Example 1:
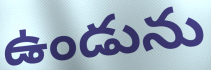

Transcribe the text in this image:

ఉండును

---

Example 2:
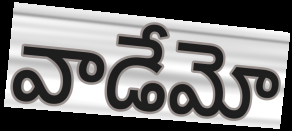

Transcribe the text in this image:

వాడేమో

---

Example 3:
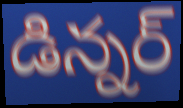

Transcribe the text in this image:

డిన్నర్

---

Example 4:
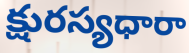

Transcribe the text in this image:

క్షురస్యధారా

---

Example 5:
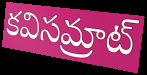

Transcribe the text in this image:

కవిసమ్రాట్